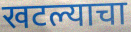
खटल्याचा